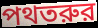
পথতরুর